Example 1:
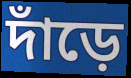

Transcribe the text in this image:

দাঁড়ে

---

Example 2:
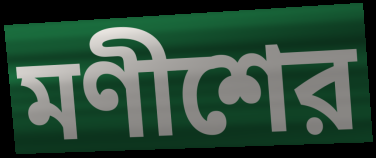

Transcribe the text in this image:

মণীশের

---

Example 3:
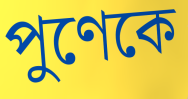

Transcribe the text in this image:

পুণেকে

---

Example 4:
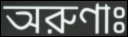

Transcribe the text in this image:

অরুণাঃ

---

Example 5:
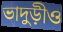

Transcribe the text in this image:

ভাদুড়ীও